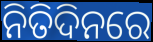
ନିତିଦିନରେ